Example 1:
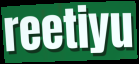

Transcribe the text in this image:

reetiyu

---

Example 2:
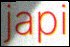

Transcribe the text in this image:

japi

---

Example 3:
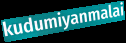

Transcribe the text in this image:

kudumiyanmalai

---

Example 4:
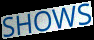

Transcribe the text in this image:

SHOWS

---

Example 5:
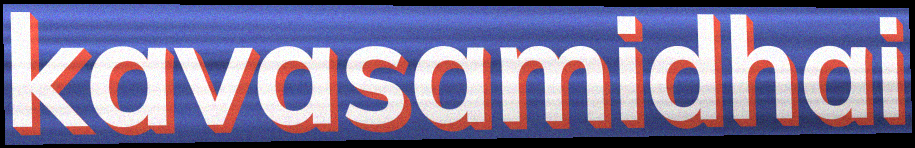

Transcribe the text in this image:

kavasamidhai